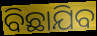
ବିଛାଯିବ